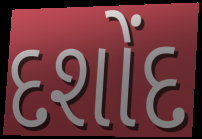
દશોંદ